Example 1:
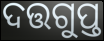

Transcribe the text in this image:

ଦତ୍ତଗୁପ୍ତ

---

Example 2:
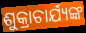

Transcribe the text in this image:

ଶୁକ୍ରାଚାର୍ଯ୍ୟଙ୍କ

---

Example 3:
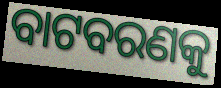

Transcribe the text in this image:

ବାଟବରଣକୁ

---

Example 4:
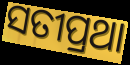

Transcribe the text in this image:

ସତୀପ୍ରଥା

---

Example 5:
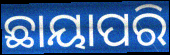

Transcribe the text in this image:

ଛାୟାପରି